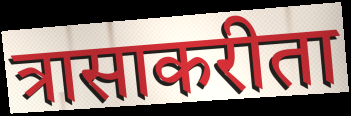
त्रासाकरीता